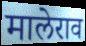
मालेराव